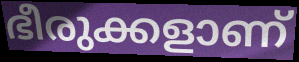
ഭീരുക്കളാണ്